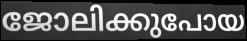
ജോലിക്കുപോയ